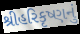
શ્રીહરિકૃષ્ણનું